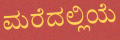
ಮರೆದಲ್ಲಿಯೆ